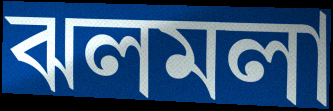
ঝলমলা